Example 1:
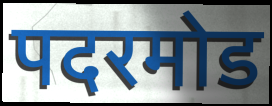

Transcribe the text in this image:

पदरमोड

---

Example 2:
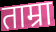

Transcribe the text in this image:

ताम्रा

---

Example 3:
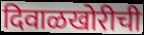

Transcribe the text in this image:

दिवाळखोरीची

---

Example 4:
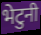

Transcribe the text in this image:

भेटुनी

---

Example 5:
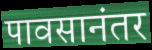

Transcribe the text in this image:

पावसानंतर